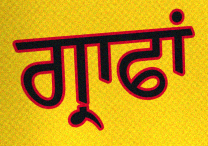
ਗ੍ਰਾਫਾਂ